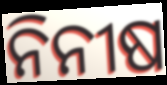
ନିନୀଷ